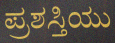
ಪ್ರಶಸ್ತಿಯು